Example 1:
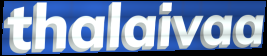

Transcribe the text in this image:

thalaivaa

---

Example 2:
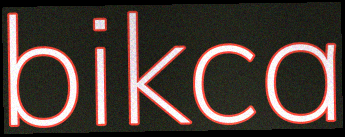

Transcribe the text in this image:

bikca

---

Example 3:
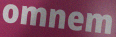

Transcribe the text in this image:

omnem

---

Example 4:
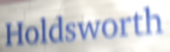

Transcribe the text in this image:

Holdsworth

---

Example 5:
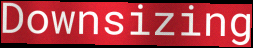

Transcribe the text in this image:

Downsizing